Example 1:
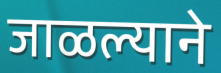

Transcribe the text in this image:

जाळल्याने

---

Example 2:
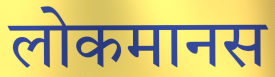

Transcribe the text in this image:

लोकमानस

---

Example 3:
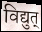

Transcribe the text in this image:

विद्युत्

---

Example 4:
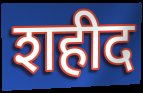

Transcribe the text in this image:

शहीद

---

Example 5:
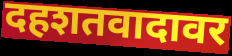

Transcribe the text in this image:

दहशतवादावर